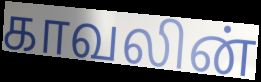
காவலின்